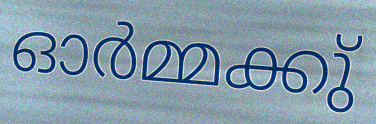
ഓർമ്മക്കു്